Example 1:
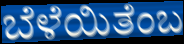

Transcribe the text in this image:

ಬೆಳೆಯಿತೆಂಬ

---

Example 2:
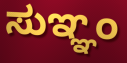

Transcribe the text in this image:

ಸುಞ್ಞಂ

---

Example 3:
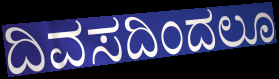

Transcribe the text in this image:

ದಿವಸದಿಂದಲೂ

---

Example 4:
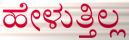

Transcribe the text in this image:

ಹೇಳುತ್ತಿಲ್ಲ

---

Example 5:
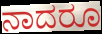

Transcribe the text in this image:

ನಾದರೂ